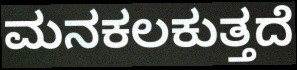
ಮನಕಲಕುತ್ತದೆ